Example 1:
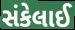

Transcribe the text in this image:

સંકેલાઈ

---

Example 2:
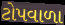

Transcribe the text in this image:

ટોપવાળા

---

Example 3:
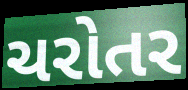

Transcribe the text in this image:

ચરોતર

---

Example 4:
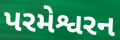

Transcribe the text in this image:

પરમેશ્વરન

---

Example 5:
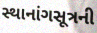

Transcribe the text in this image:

સ્થાનાંગસૂત્રની